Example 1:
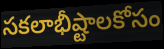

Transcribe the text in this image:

సకలాభీష్టాలకోసం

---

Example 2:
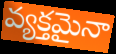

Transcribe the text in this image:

వ్యక్తమైనా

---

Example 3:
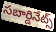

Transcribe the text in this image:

సబార్డినేట్స్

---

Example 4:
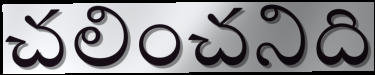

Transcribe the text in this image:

చలించనిది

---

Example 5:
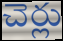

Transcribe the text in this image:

చెర్లు